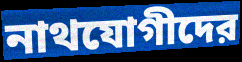
নাথযোগীদের